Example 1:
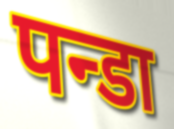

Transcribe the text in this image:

पन्डा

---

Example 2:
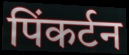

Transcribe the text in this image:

पिंकर्टन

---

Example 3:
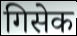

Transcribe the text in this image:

गिसेक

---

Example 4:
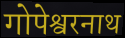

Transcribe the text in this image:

गोपेश्वरनाथ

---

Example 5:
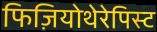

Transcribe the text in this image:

फिज़ियोथेरेपिस्ट